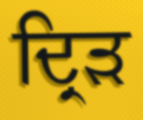
ਦ੍ਰਿੜ